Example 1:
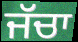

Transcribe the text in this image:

ਜੱਚਾ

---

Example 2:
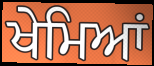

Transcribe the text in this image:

ਖੇਮਿਆਂ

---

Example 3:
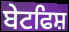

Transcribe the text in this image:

ਬੇਟਫਿਸ਼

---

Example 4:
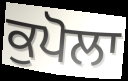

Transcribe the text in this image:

ਕੁਪੋਲਾ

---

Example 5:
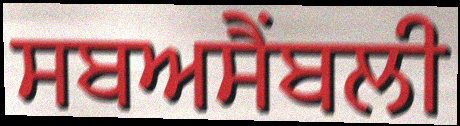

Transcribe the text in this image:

ਸਬਅਸੈਂਬਲੀ